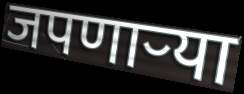
जपणाऱ्या